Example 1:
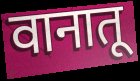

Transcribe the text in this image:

वानातू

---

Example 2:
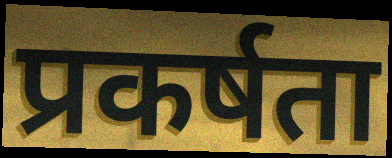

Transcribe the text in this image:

प्रकर्षता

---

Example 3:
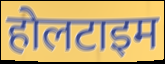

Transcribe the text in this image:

होलटाइम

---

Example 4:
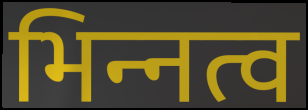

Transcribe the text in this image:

भिन्नत्व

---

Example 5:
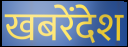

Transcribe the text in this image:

खबरेंदेश